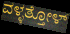
ವಳ್ಳತ್ತೋಳ್